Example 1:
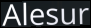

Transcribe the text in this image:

Alesur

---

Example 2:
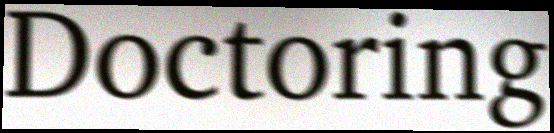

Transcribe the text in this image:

Doctoring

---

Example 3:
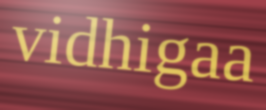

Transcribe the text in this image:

vidhigaa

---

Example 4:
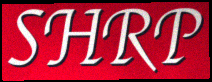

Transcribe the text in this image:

SHRP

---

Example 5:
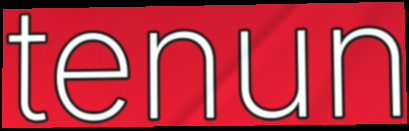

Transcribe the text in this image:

tenun